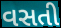
વસતી